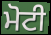
ਮੋਟੀ